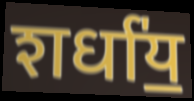
शर्धा॑य॒